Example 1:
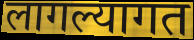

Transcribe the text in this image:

लागल्यागत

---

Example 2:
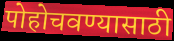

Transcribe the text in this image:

पोहोचवण्यासाठी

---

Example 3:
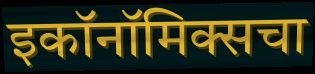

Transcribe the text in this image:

इकॉनॉमिक्सचा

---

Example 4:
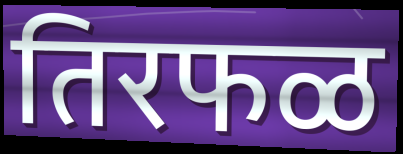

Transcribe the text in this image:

तिरफळ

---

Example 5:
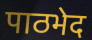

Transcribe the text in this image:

पाठभेद